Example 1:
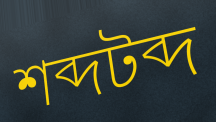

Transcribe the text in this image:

শব্দটব্দ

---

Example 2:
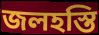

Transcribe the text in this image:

জলহস্তি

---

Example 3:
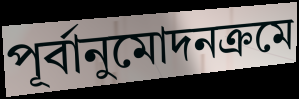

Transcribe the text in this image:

পূর্বানুমোদনক্রমে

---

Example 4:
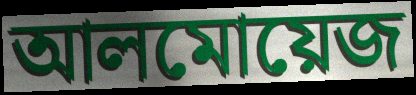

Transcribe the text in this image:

আলমোয়েজ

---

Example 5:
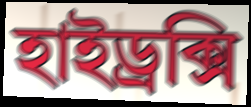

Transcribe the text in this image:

হাইড্রক্সি